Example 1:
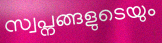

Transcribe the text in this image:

സ്വപ്നങ്ങളുടെയും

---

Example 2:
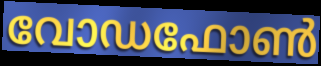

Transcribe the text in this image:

വോഡഫോൺ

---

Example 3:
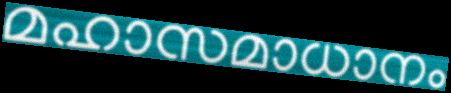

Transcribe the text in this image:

മഹാസമാധാനം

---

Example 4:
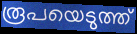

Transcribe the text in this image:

രൂപയെടുത്ത്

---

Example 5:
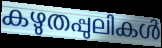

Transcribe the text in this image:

കഴുതപ്പുലികൾ